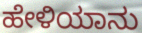
ಹೇಳಿಯಾನು